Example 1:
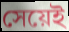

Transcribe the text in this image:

সেয়েই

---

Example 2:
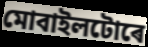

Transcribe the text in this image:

মোবাইলটোৰে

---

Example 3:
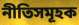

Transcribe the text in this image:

নীতিসমূহক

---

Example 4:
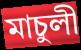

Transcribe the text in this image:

মাচুলী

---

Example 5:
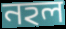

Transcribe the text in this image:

নহল